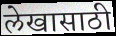
लेखासाठी